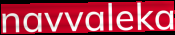
navvaleka